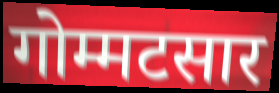
गोम्मटसार